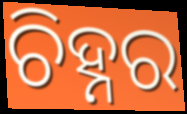
ଚିହ୍ନର